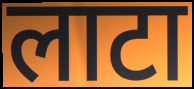
लाटा